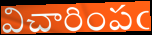
విచారింపఁ